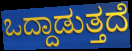
ಒದ್ದಾಡುತ್ತದೆ